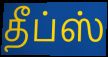
தீப்ஸ்